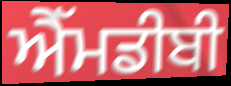
ਐੱਮਡੀਬੀ